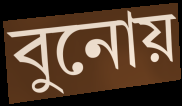
বুনোয়